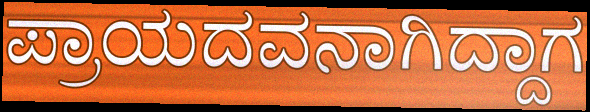
ಪ್ರಾಯದವನಾಗಿದ್ದಾಗ